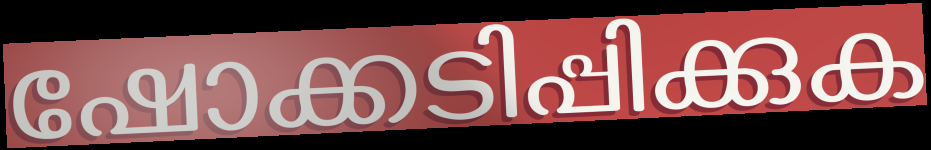
ഷോക്കടിപ്പിക്കുക